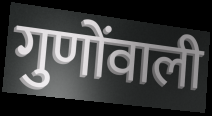
गुणोंवाली